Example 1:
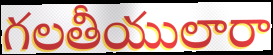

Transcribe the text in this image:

గలతీయులారా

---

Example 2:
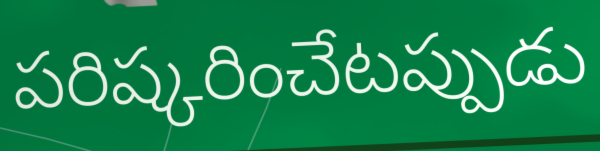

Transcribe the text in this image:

పరిష్కరించేటప్పుడు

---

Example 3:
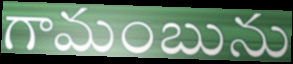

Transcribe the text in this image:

గామంబును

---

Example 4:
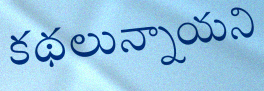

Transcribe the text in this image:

కథలున్నాయని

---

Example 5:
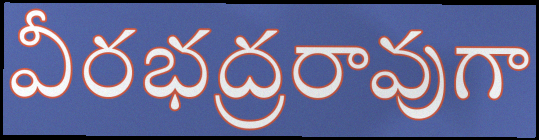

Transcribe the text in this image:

వీరభద్రరావుగా